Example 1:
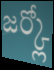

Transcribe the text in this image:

జర్క్లో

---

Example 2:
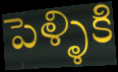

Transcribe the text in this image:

పెళ్ళికి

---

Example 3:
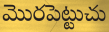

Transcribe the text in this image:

మొరపెట్టుచు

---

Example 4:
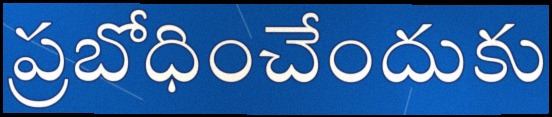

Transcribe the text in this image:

ప్రబోధించేందుకు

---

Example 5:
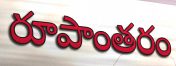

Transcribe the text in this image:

రూపాంతరం